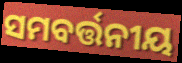
ସମବର୍ତ୍ତନୀୟ